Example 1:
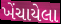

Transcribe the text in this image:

ખેંચાયેલા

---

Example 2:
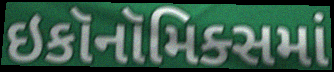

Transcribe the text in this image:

ઇકૉનૉમિક્સમાં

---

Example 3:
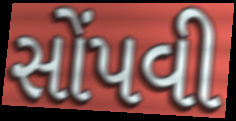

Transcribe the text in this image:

સોંપવી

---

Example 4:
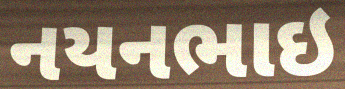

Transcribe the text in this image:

નયનભાઇ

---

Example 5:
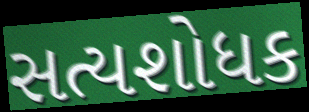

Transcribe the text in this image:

સત્યશોધક